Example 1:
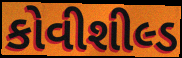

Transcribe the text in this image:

કોવીશીલ્ડ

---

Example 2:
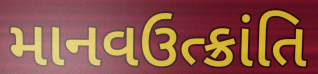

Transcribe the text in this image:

માનવઉત્ક્રાંતિ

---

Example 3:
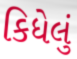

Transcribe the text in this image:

કિધેલું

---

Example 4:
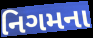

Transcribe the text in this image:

નિગમના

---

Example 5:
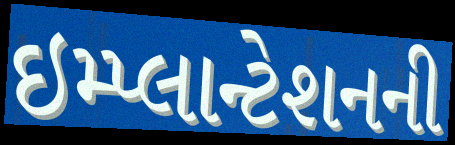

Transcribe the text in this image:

ઇમ્પ્લાન્ટેશનની